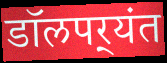
डॉलपर्यंत